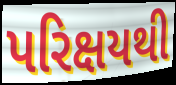
પરિક્ષયથી